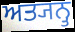
ਅਤ੍ਯਨ੍ਤ